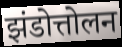
झंडोत्तोलन